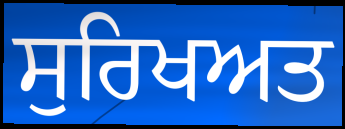
ਸੁਰਿਖਅਤ